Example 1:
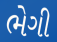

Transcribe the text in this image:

ભેગી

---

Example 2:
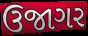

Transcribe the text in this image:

ઉજાગર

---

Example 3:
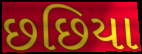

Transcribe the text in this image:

છછિયા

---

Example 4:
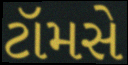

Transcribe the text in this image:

ટૉમસે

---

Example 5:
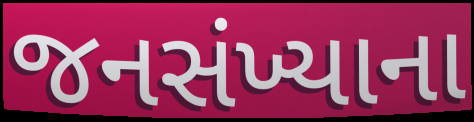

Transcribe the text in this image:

જનસંખ્યાના